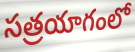
సత్రయాగంలో